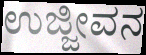
ಉಜ್ಜೀವನ